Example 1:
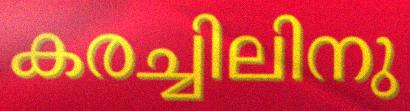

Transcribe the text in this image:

കരച്ചിലിനു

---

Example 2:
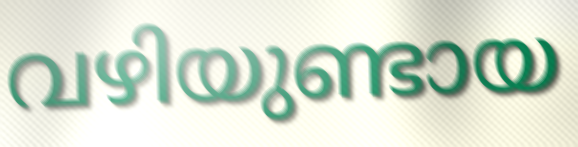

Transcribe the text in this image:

വഴിയുണ്ടായ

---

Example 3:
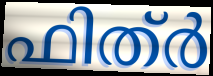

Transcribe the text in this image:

ഫിത്ർ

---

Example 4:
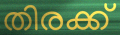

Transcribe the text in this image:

തിരക്ക്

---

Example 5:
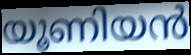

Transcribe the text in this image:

യൂണിയൻ